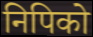
निपिको